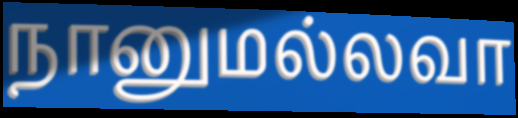
நானுமல்லவா